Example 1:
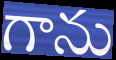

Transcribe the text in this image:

గాను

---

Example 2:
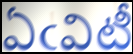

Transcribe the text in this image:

ఏఁవిటీ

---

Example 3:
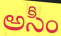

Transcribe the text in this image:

అసీం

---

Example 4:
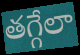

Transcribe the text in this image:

తగ్గేలా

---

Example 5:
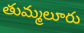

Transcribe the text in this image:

తుమ్మలూరు